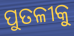
ପୁତଳୀକୁ